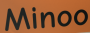
Minoo